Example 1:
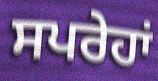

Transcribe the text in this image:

ਸਪਰੇਹਾਂ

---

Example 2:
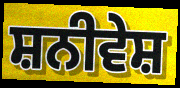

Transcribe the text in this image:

ਸ਼ਨੀਵੇਸ਼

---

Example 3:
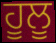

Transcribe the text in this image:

ਹੂਲੂ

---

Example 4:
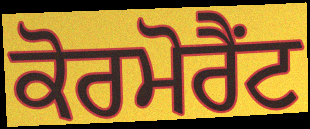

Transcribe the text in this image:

ਕੋਰਮੋਰੈਂਟ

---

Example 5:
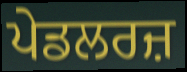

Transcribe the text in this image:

ਪੇਡਲਰਜ਼